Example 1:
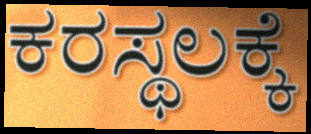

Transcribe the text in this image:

ಕರಸ್ಥಲಕ್ಕೆ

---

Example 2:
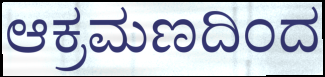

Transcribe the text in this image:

ಆಕ್ರಮಣದಿಂದ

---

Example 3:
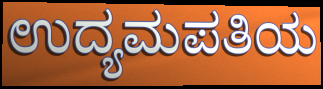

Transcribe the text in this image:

ಉದ್ಯಮಪತಿಯ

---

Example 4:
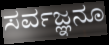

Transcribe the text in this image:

ಸರ್ವಜ್ಞನೂ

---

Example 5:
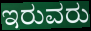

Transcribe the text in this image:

ಇರುವರು